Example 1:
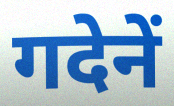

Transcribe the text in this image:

गदेनें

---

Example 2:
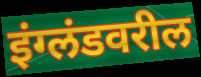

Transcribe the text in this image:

इंग्लंडवरील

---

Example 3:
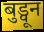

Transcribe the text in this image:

बुड्वून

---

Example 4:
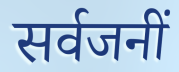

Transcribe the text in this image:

सर्वजनीं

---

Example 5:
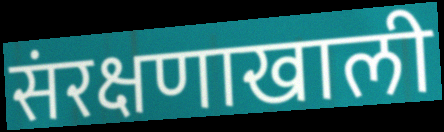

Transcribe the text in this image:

संरक्षणाखाली